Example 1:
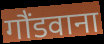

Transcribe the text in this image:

गौंडवाना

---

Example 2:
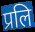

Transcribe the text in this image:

प्रलि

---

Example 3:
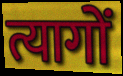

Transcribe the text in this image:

त्यागों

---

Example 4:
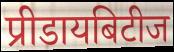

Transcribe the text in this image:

प्रीडायबिटीज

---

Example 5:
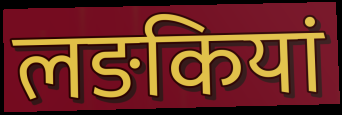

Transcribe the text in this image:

लङकियां